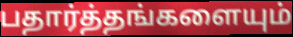
பதார்த்தங்களையும்